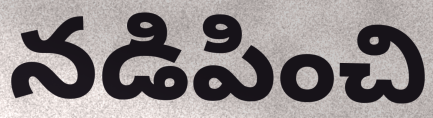
నడిపించి